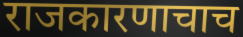
राजकारणाचाच